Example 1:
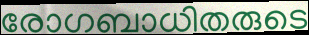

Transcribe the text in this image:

രോഗബാധിതരുടെ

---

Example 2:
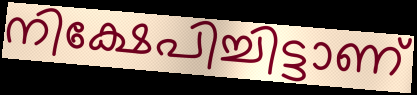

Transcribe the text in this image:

നിക്ഷേപിച്ചിട്ടാണ്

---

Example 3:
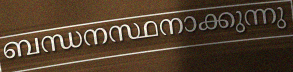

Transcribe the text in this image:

ബന്ധനസ്ഥനാക്കുന്നു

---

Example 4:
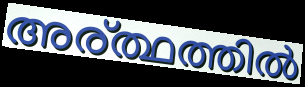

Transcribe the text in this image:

അര്ത്ഥത്തിൽ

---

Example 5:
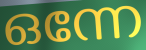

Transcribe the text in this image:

ഒന്നേ